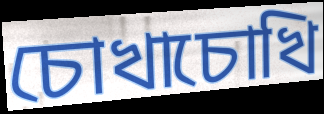
চোখাচোখি